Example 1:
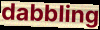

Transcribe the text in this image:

dabbling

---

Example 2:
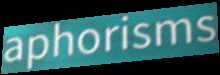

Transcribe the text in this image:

aphorisms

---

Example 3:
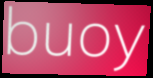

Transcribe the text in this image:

buoy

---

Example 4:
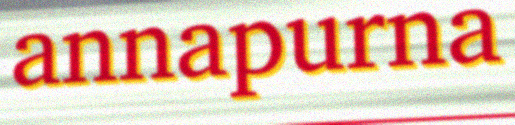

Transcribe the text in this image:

annapurna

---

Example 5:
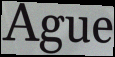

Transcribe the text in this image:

Ague